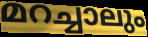
മറച്ചാലും